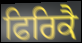
ਫਿਰਿਕੈ